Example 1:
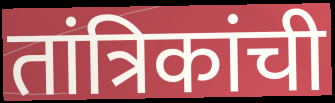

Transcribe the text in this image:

तांत्रिकांची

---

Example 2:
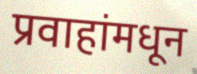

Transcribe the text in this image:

प्रवाहांमधून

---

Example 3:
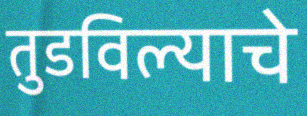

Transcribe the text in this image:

तुडविल्याचे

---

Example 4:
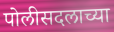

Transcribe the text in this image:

पोलीसदलाच्या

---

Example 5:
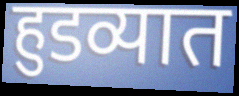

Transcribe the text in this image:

हुडव्यात